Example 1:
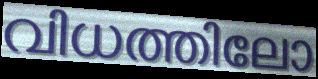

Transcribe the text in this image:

വിധത്തിലോ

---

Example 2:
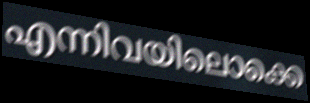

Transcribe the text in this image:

എന്നിവയിലൊക്കെ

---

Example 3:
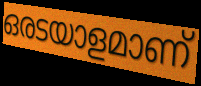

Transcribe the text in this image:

ഒരടയാളമാണ്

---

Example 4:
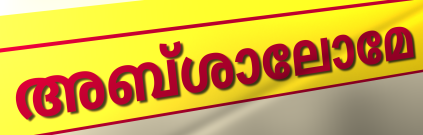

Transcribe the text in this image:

അബ്ശാലോമേ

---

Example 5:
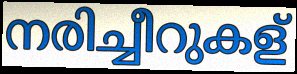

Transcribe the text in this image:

നരിച്ചീറുകള്